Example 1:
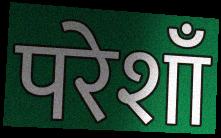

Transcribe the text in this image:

परेशाँ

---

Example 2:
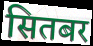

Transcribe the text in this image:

सितबर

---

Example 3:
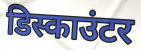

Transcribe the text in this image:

डिस्काउंटर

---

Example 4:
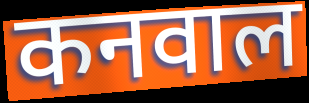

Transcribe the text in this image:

कनवाल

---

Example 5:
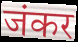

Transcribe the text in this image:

जंकर